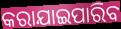
କରାଯାଇପାରିବ